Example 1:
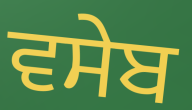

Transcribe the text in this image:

ਵਸੇਬ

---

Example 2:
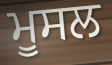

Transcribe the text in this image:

ਮੂਸਲ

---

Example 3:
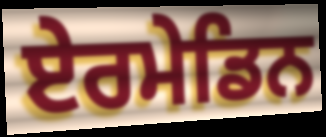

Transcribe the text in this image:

ਏਰਮੇਡਿਨ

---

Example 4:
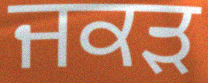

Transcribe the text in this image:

ਜਕਡ਼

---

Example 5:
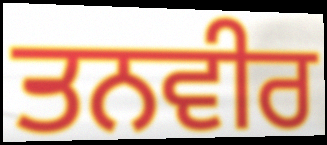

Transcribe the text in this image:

ਤਨਵੀਰ